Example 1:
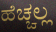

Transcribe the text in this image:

ಹೆಚ್ಚಲ್ಲ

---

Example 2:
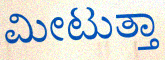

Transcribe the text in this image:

ಮೀಟುತ್ತಾ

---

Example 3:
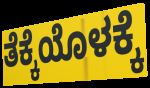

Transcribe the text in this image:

ತೆಕ್ಕೆಯೊಳಕ್ಕೆ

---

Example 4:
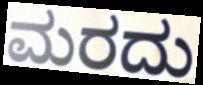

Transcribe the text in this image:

ಮರದು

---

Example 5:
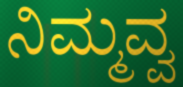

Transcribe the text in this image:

ನಿಮ್ಮವ್ವ